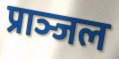
प्राञ्जल